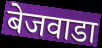
बेजवाडा